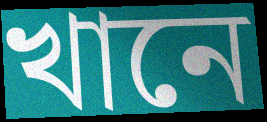
খানে